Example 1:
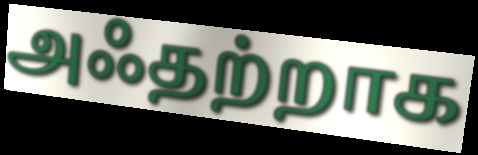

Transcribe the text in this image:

அஃதற்றாக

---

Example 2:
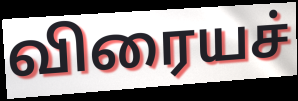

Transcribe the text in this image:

விரையச்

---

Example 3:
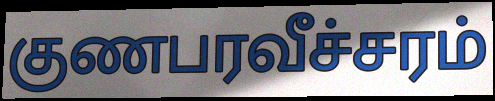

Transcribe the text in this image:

குணபரவீச்சரம்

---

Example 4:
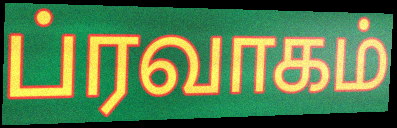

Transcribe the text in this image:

ப்ரவாகம்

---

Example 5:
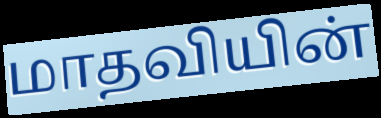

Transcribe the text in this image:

மாதவியின்